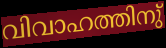
വിവാഹത്തിനു്